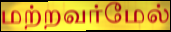
மற்றவர்மேல்